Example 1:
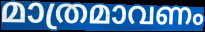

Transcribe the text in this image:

മാത്രമാവണം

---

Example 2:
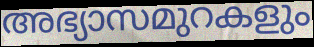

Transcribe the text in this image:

അഭ്യാസമുറകളും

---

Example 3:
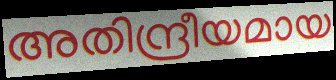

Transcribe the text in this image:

അതിന്ദ്രീയമായ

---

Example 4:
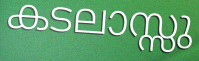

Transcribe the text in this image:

കടലാസ്സു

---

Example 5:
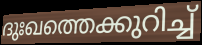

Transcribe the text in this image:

ദുഃഖത്തെക്കുറിച്ച്